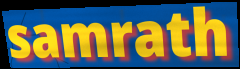
samrath